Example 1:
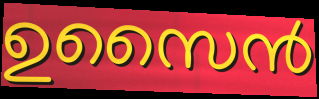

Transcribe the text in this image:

ഉസൈൻ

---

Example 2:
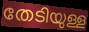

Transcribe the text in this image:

തേടിയുള്ള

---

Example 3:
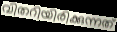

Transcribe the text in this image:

വിതറിയിരിക്കുന്നത്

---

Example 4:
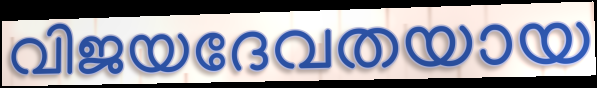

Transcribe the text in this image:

വിജയദേവതയായ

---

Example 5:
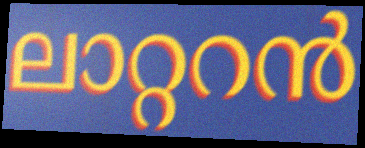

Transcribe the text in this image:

ലാറ്ററൻ